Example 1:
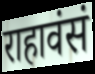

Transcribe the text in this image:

राहावंसं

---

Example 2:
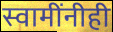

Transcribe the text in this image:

स्वामींनीही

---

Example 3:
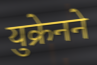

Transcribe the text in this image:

युक्रेनने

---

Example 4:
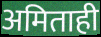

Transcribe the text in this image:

अमिताही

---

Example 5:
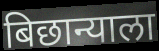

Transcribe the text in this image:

बिछान्याला